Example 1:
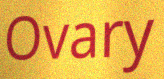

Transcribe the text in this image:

Ovary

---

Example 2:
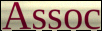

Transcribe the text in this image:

Assoc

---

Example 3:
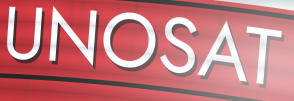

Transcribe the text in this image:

UNOSAT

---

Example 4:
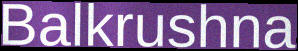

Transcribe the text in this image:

Balkrushna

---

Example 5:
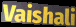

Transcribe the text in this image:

Vaishali